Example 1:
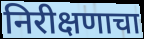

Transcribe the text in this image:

निरीक्षणाचा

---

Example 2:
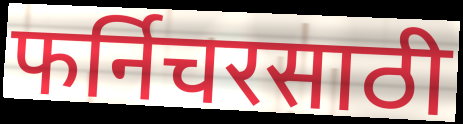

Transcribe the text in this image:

फर्निचरसाठी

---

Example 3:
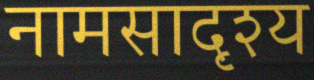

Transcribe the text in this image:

नामसादृश्य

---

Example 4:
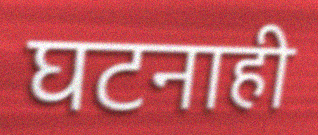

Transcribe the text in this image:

घटनाही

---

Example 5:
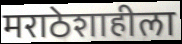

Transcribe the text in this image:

मराठेशाहीला